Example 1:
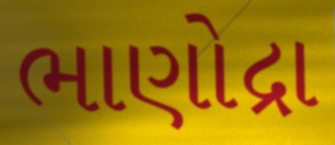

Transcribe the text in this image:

ભાણોદ્રા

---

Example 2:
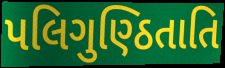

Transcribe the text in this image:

પલિગુણ્ઠિતાતિ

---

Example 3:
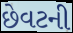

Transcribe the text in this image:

છેવટની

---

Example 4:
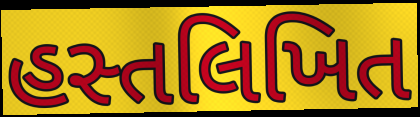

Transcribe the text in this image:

હસ્તલિખિત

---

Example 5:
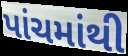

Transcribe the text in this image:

પાંચમાંથી